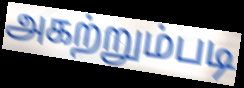
அகற்றும்படி